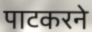
पाटकरने